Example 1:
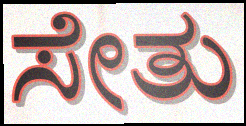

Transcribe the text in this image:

ಸೇತು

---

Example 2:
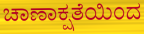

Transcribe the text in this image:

ಚಾಣಾಕ್ಷತೆಯಿಂದ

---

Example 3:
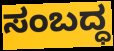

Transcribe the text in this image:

ಸಂಬದ್ಧ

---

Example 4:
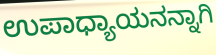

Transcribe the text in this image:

ಉಪಾಧ್ಯಾಯನನ್ನಾಗಿ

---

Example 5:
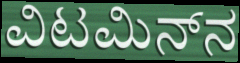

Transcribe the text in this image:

ವಿಟಮಿನ್‌ನ